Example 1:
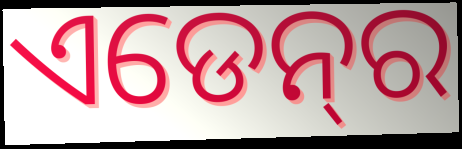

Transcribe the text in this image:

ଏଡେନ୍‍ର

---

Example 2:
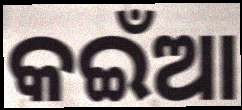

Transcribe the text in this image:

କଇଁଆ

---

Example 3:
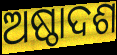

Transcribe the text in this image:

ଅଷ୍ଠାଦଶ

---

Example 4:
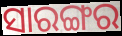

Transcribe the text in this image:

ସାରଙ୍ଗର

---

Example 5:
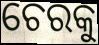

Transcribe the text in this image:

ଚେରକୁ